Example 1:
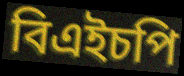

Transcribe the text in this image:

বিএইচপি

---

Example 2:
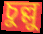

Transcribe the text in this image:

চুল্লু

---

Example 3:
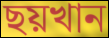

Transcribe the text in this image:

ছয়খান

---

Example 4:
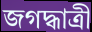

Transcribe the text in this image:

জগদ্ধাত্রী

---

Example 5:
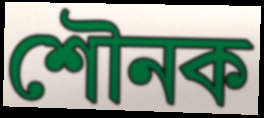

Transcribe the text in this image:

শৌনক